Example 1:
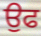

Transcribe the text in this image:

ਉਫ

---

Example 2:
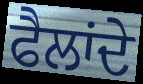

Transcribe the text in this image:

ਫੈਲਾਂਦੇ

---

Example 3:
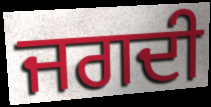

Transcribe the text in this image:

ਜਗਦੀ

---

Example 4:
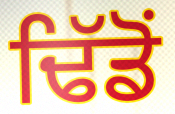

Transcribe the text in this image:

ਢਿੱਡੋਂ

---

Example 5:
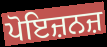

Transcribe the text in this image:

ਪੋਇਜ਼ਨਜ਼